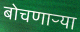
बोचणाऱ्या